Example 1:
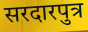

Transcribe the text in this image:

सरदारपुत्र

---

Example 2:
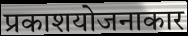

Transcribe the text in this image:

प्रकाशयोजनाकार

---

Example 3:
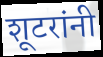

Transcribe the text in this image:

शूटरांनी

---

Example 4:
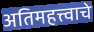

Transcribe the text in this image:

अतिमहत्त्वाचे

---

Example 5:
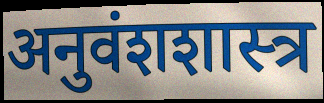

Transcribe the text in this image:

अनुवंशशास्त्र